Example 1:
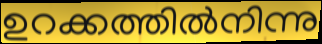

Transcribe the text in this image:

ഉറക്കത്തിൽനിന്നു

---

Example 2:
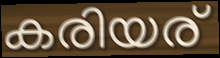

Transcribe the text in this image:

കരിയര്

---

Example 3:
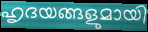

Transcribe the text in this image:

ഹൃദയങ്ങളുമായി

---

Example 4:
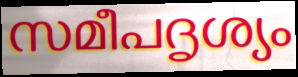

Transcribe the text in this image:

സമീപദൃശ്യം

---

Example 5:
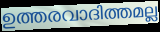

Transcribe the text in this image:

ഉത്തരവാദിത്തമല്ല